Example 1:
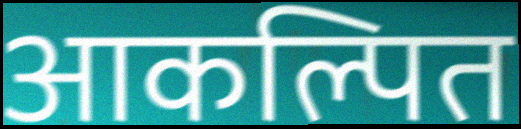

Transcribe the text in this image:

आकल्पित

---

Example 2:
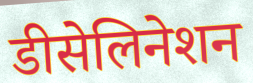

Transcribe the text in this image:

डीसेलिनेशन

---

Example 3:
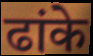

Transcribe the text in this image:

ढांके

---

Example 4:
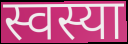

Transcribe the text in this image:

स्वस्या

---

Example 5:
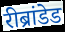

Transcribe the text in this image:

रीब्रांडेड